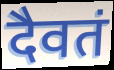
दैवतं